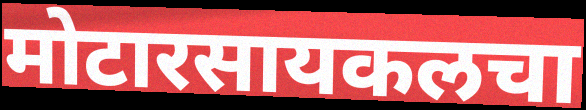
मोटारसायकलचा